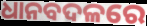
ଧାନବଦଳରେ